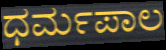
ಧರ್ಮಪಾಲ